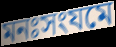
মনঃসংযমে